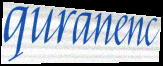
quranenc